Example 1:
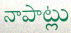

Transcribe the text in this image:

నాపాట్లు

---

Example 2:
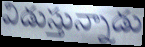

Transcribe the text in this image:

విడుస్తున్నాడు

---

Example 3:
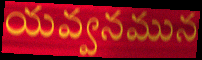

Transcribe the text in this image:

యవ్వనమున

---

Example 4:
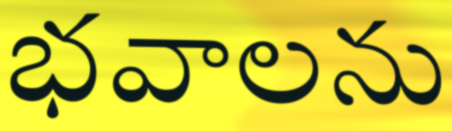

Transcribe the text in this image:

భవాలను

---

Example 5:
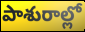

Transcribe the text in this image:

పాశురాల్లో